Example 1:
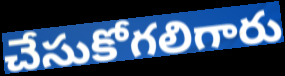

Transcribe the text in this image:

చేసుకోగలిగారు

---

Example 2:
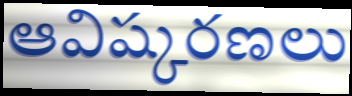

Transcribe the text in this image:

ఆవిష్కరణలు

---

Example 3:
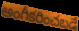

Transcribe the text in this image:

అంగీకరించబడే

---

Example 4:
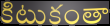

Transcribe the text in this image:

కిటుకంతా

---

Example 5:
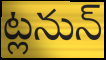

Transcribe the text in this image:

ట్లనున్